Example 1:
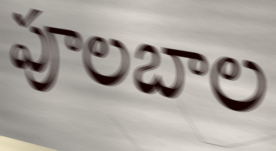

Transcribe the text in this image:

పూలబాల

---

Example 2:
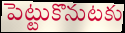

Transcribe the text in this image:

పెట్టుకొనుటకు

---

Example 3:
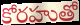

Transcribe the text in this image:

కోరహుతో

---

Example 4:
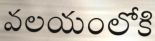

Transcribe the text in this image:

వలయంలోకి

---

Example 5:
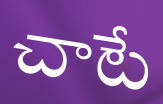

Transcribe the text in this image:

చాటే